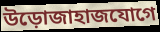
উড়োজাহাজযোগে